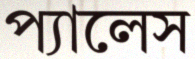
প্যালেস